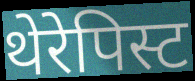
थेरेपिस्ट